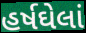
હર્ષઘેલાં